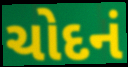
ચોદનં